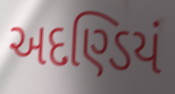
અદણ્ડિયં